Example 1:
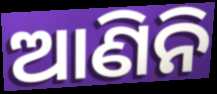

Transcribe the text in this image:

ଆଣିନି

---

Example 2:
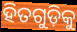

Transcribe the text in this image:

ହିତଗୁଡ଼ିକୁ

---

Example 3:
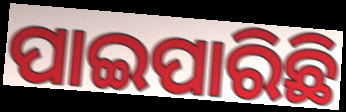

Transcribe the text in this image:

ପାଇପାରିଛି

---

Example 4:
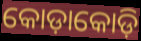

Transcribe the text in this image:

କୋଡ଼ାକୋଡ଼ି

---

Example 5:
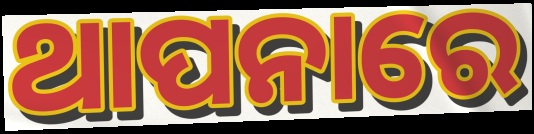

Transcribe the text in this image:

ଥାପନାରେ